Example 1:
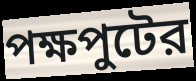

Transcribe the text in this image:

পক্ষপুটের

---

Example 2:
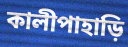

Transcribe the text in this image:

কালীপাহাড়ি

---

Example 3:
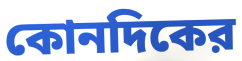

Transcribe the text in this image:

কোনদিকের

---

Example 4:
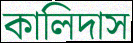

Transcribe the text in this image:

কালিদাস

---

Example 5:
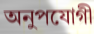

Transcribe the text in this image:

অনুপযোগী